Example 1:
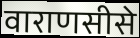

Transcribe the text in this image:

वाराणसीसे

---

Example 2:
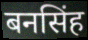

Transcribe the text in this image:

बनसिंह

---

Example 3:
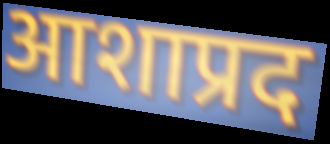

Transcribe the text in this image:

आशाप्रद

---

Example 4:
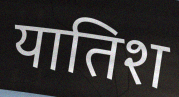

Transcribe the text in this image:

यातिश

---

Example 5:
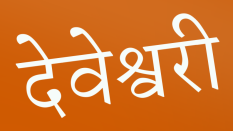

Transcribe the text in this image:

देवेश्वरी